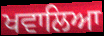
ਖਵਾਲਿਆ